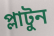
প্লাটুন